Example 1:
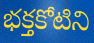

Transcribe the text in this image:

భక్తకోటిని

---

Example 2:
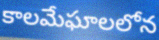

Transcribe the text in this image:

కాలమేఘాలలోన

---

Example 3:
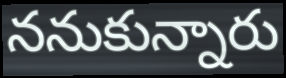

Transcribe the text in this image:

ననుకున్నారు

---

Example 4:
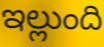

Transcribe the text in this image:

ఇల్లుంది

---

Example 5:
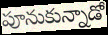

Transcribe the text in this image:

పూనుకున్నాడో